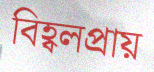
বিহ্বলপ্রায়